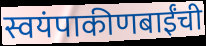
स्वयंपाकीणबाईंची